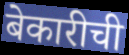
बेकारीची